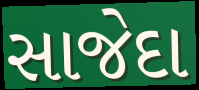
સાજેદા